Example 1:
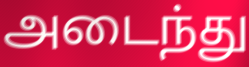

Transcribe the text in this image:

அடைந்து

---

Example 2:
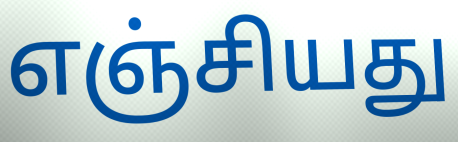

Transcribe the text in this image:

எஞ்சியது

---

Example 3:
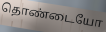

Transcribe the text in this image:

தொண்டையோ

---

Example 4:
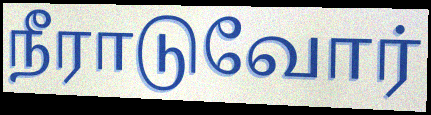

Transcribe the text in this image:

நீராடுவோர்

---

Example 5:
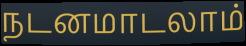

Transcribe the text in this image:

நடனமாடலாம்